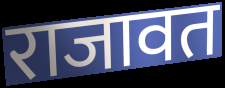
राजावत